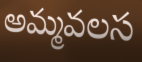
అమ్మవలస